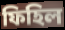
ফিহিল